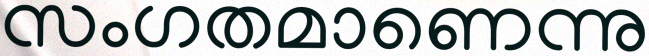
സംഗതമാണെന്നു